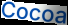
Cocoa